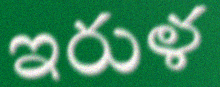
ఇరుళ